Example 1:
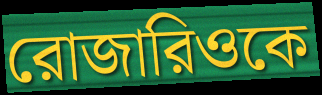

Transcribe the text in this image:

রোজারিওকে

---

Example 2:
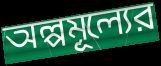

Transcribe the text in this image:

অল্পমূল্যের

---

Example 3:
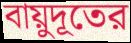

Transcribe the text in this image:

বায়ুদূতের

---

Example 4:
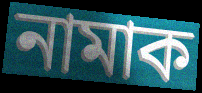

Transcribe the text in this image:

নামাক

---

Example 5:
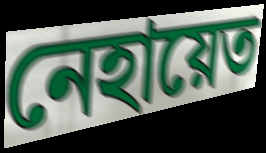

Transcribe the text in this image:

নেহায়েত